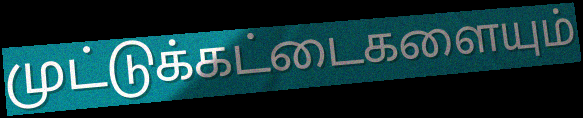
முட்டுக்கட்டைகளையும்